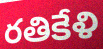
రతికేళి